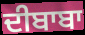
ਦੀਬਾਬਾ